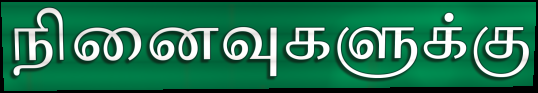
நினைவுகளுக்கு